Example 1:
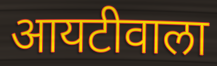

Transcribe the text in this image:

आयटीवाला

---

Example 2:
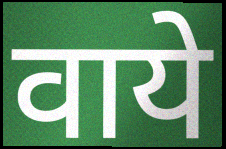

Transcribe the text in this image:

वाये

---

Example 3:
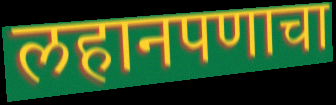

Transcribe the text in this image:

लहानपणाचा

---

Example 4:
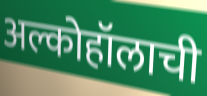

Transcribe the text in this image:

अल्कोहॉलाची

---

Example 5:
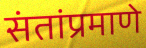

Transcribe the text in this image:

संतांप्रमाणे